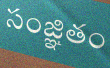
సంజ్ఞితం